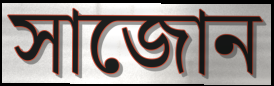
সাজোন